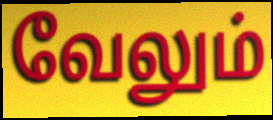
வேலும்